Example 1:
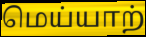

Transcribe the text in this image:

மெய்யாற்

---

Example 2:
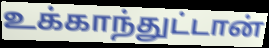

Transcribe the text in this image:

உக்காந்துட்டான்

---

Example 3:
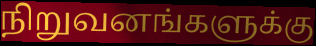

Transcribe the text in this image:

நிறுவனங்களுக்கு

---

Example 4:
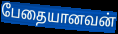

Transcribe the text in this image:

பேதையானவன்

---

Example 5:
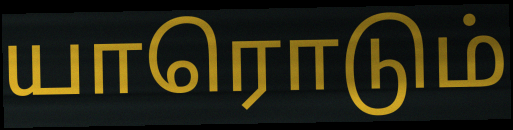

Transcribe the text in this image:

யாரொடும்